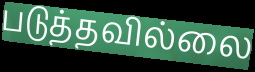
படுத்தவில்லை